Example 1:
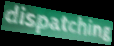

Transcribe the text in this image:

dispatching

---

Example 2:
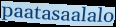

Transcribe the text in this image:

paatasaalalo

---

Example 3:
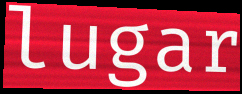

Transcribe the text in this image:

lugar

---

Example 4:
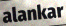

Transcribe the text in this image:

alankar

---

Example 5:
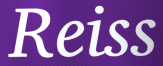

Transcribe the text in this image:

Reiss